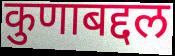
कुणाबद्दल